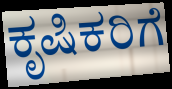
ಕೃಷಿಕರಿಗೆ